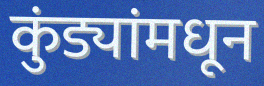
कुंड्यांमधून